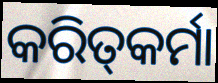
କରିତ୍‍କର୍ମା